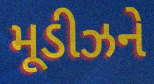
મૂડીઝને